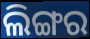
ଲିଙ୍ଗର